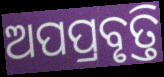
ଅପପ୍ରବୃତ୍ତି